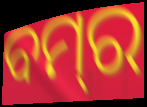
ବମ୍‌ର